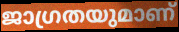
ജാഗ്രതയുമാണ്